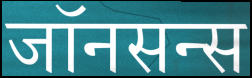
जॉनसन्स